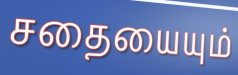
சதையையும்